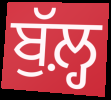
ਬੁੱਲ਼੍ਹ